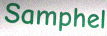
Samphel